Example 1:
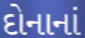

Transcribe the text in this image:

દોનાનાં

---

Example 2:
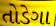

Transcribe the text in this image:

તોડેગા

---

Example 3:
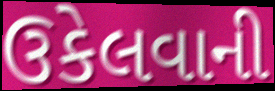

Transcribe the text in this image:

ઉકેલવાની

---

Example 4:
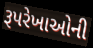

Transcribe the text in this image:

રૂપરેખાઓની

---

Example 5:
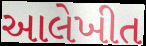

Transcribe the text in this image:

આલેખીત